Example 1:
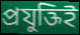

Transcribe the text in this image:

প্রযুক্তিই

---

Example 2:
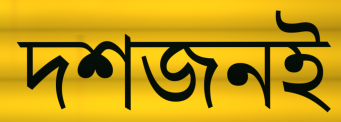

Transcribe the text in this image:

দশজনই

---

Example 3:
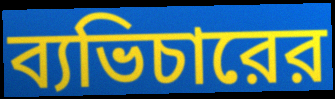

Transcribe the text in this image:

ব্যভিচারের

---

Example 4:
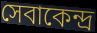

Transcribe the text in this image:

সেবাকেন্দ্র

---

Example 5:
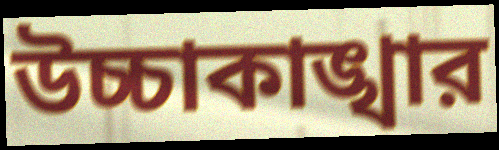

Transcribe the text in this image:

উচ্চাকাঙ্খার